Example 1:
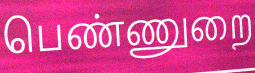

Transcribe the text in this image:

பெண்ணுறை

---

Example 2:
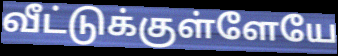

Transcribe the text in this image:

வீட்டுக்குள்ளேயே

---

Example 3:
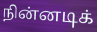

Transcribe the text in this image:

நின்னடிக்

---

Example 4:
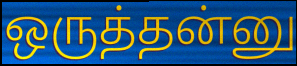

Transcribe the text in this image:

ஒருத்தன்னு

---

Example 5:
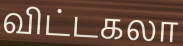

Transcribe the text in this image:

விட்டகலா